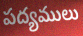
పద్యములు